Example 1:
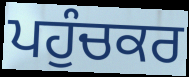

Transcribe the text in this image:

ਪਹੁੰਚਕਰ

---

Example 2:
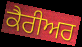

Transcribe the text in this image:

ਕੈਰੀਅਰ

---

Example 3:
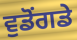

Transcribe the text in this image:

ਵੁਡੋਂਗਡੇ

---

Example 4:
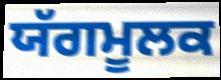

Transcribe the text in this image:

ਯੱਗਮੂਲਕ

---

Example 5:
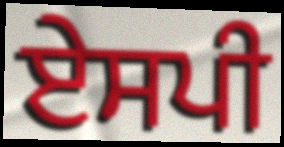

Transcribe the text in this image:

ਏਸਪੀ